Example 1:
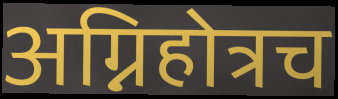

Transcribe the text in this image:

अग्निहोत्रच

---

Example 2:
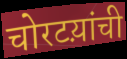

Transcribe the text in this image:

चोरटय़ांची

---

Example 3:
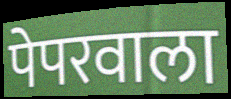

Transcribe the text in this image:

पेपरवाला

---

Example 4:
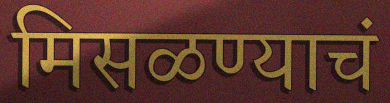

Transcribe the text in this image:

मिसळण्याचं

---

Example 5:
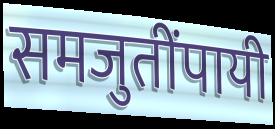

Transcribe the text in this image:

समजुतींपायी